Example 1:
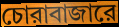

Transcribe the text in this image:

চোরাবাজারে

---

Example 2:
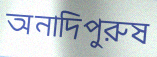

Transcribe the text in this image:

অনাদিপুরুষ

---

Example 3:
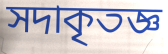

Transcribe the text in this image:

সদাকৃতজ্ঞ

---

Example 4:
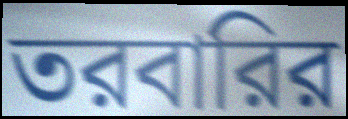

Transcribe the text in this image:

তরবারির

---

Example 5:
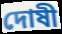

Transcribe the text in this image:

দোষী